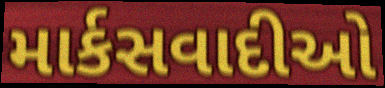
માર્કસવાદીઓ